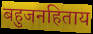
बहुजनहिताय